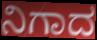
ನಿಗಾದ